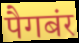
पैगबंर